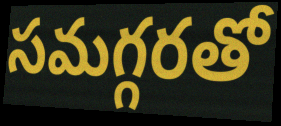
సమగ్గరతో